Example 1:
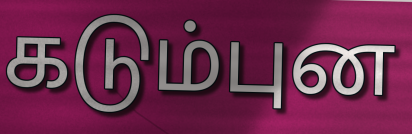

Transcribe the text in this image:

கடும்புன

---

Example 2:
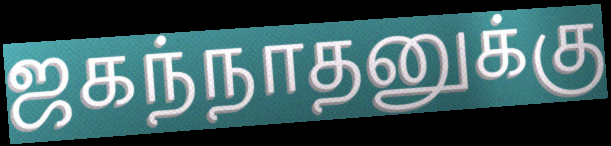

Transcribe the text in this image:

ஜகந்நாதனுக்கு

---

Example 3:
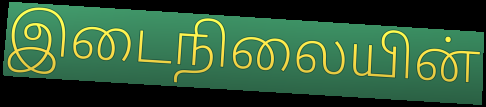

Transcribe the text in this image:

இடைநிலையின்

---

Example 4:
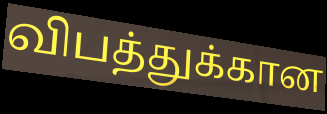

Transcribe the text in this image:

விபத்துக்கான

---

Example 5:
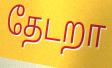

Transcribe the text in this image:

தேடறா